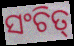
ସଂଚିତ୍